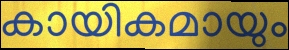
കായികമായും